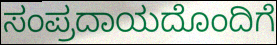
ಸಂಪ್ರದಾಯದೊಂದಿಗೆ